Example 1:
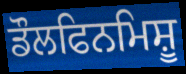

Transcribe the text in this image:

ਡੌਲਫਿਨਮਿਸ਼ੂ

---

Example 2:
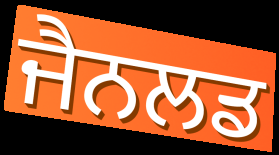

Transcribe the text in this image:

ਜੈਨਲਡ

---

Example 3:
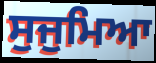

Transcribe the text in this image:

ਸੁਜੁਮਿਆ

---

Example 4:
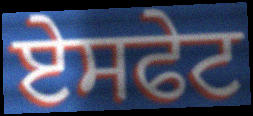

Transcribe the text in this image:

ਏਸਫੇਟ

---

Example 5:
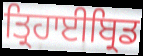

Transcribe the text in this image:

ਤ੍ਰਿਹਾਈਬ੍ਰਿਡ